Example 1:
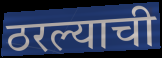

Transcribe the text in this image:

ठरल्याची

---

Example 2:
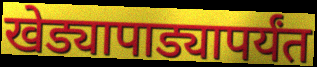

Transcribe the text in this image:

खेड्यापाड्यापर्यंत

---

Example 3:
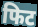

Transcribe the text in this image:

फिट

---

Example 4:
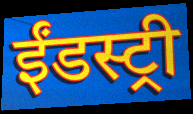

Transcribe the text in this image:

ईंडस्ट्री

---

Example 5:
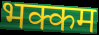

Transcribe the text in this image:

भक्कम